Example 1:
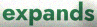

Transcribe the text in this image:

expands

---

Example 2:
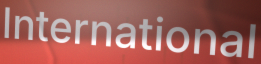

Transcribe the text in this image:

International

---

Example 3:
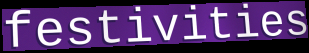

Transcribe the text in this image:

festivities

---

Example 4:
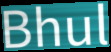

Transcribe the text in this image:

Bhul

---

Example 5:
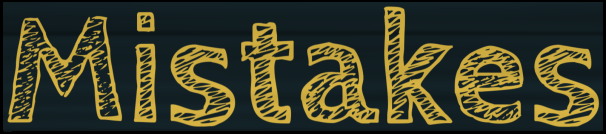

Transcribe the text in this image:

Mistakes